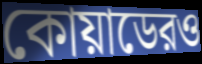
কোয়াডেরও